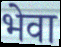
भेवा